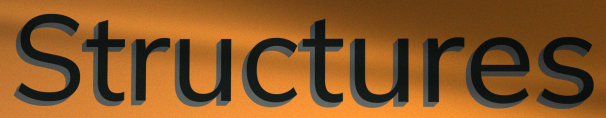
Structures